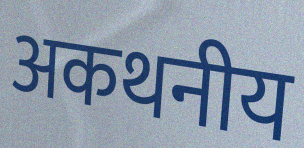
अकथनीय